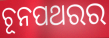
ଚୂନପଥରର